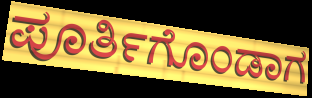
ಪೂರ್ತಿಗೊಂಡಾಗ